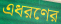
এধরণের